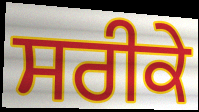
ਸਰੀਕੇ